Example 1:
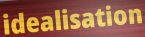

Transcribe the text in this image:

idealisation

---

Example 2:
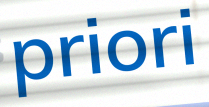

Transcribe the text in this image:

priori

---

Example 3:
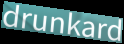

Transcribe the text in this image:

drunkard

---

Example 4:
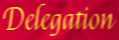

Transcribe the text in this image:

Delegation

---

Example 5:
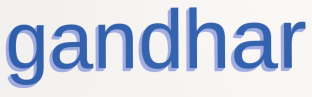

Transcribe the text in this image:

gandhar